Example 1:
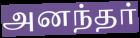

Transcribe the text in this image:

அனந்தர்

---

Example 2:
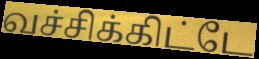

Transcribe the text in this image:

வச்சிக்கிட்டே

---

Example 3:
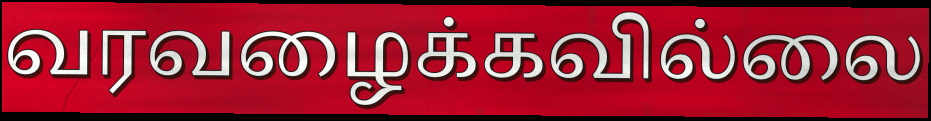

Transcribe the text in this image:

வரவழைக்கவில்லை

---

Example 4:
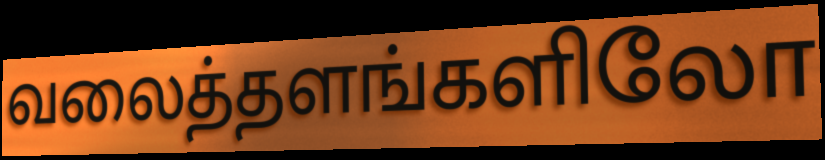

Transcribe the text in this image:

வலைத்தளங்களிலோ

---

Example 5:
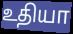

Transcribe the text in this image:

உதியா